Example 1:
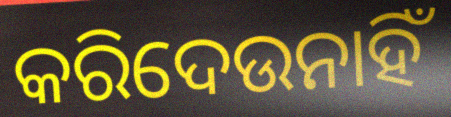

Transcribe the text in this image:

କରିଦେଉନାହିଁ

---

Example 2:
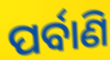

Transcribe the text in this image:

ପର୍ବାଣି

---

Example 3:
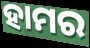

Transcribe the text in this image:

ହାମର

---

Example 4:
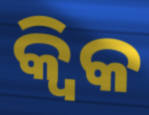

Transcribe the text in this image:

କ୍ୱିକ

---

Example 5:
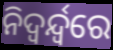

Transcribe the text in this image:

ନିଦ୍ଵର୍ନ୍ଦ୍ୱରେ